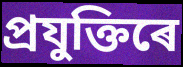
প্ৰযুক্তিৰে